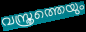
വസ്ത്രത്തെയും